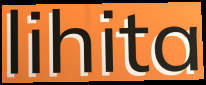
lihita